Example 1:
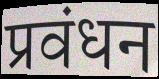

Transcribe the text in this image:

प्रवंधन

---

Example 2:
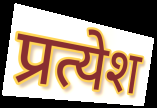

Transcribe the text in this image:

प्रत्येश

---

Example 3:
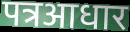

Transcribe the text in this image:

पत्रआधार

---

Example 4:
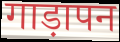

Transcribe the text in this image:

गाड़ापन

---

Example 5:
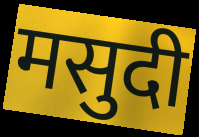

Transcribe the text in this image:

मसुदी